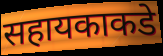
सहायकाकडे